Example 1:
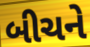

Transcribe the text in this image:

બીચને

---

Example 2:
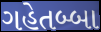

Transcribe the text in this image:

ગહેતબ્બા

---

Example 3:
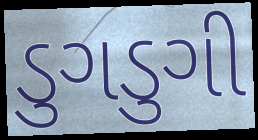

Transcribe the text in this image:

ડુગડુગી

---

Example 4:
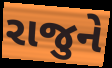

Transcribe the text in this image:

રાજુને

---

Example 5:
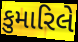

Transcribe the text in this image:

કુમારિલે